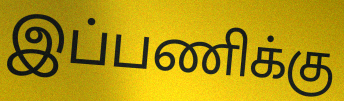
இப்பணிக்கு